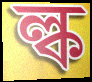
ল্ক